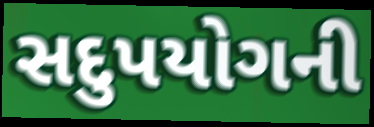
સદુપયોગની